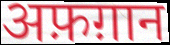
अफ़ग़ान